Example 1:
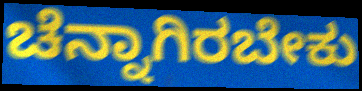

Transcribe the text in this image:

ಚೆನ್ನಾಗಿರಬೇಕು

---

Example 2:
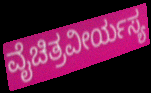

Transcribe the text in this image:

ವೈಚಿತ್ರವೀರ್ಯಸ್ಯ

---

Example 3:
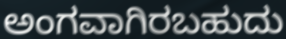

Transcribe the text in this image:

ಅಂಗವಾಗಿರಬಹುದು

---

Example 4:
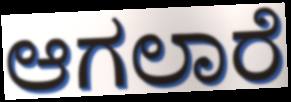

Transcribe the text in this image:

ಆಗಲಾರೆ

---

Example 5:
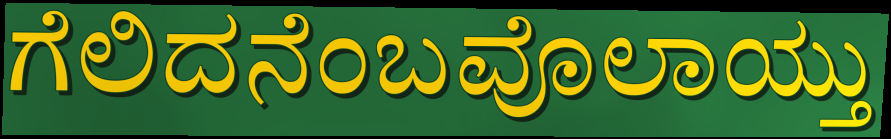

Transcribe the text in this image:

ಗೆಲಿದನೆಂಬವೊಲಾಯ್ತು